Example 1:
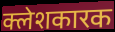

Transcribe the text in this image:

क्लेशकारक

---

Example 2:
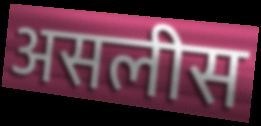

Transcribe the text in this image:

असलीस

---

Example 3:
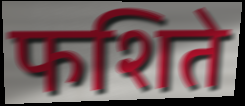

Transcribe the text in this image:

फशिते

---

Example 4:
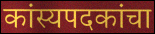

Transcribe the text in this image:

कांस्यपदकांचा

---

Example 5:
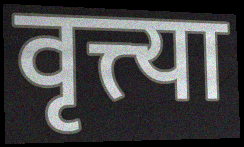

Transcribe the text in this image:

वृत्त्या